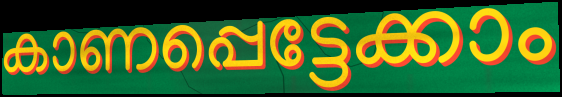
കാണപ്പെട്ടേക്കാം